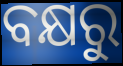
ବକ୍ଷରୁ